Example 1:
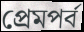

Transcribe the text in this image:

প্রেমপর্ব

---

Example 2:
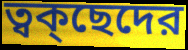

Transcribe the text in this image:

ত্বক্ছেদের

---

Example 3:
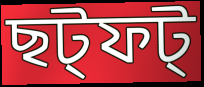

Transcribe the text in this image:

ছট্‌ফট্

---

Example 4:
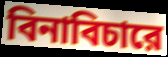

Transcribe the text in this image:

বিনাবিচারে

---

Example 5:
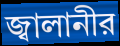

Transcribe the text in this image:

জ্বালানীর